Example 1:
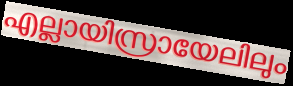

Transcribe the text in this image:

എല്ലായിസ്രായേലിലും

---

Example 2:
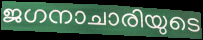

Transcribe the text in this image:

ജഗനാചാരിയുടെ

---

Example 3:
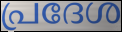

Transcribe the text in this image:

പ്രദേശ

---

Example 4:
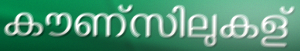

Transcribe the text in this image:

കൗണ്സിലുകള്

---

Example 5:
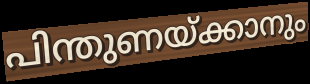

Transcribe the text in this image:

പിന്തുണയ്ക്കാനും